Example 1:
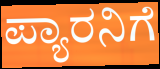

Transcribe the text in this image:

ಪ್ಯಾರನಿಗೆ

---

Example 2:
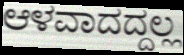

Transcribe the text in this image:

ಆಳವಾದದ್ದಲ್ಲ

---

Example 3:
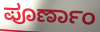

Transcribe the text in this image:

ಪೂರ್ಣಾಂ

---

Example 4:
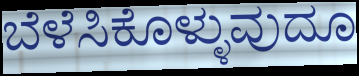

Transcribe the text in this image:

ಬೆಳೆಸಿಕೊಳ್ಳುವುದೂ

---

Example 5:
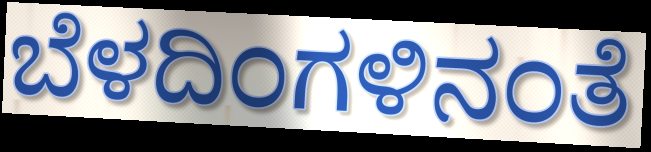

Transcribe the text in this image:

ಬೆಳದಿಂಗಳಿನಂತೆ